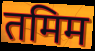
तमिम